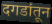
दगडांतून